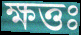
ক্ষত্তঃ